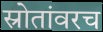
स्रोतांवरच